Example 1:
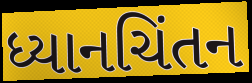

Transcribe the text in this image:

ધ્યાનચિંતન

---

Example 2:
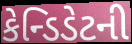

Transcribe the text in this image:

કેન્ડિડેટની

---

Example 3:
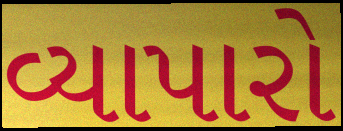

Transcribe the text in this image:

વ્યાપારો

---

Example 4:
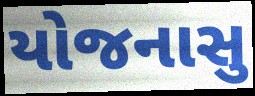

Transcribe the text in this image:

યોજનાસુ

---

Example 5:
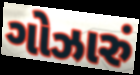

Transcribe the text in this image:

ગોઝારું